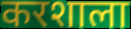
करशाला